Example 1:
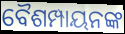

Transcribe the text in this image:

ବୈଶମ୍ପାୟନଙ୍କ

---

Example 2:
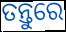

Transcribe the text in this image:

ତନ୍ତୁରେ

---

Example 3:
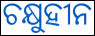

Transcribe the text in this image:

ଚକ୍ଷୁହୀନ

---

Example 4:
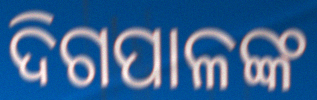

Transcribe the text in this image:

ଦିଗପାଳଙ୍କ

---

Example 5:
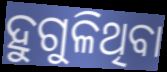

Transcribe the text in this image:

ହୁଗୁଳିଥିବା